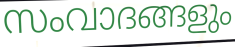
സംവാദങ്ങളും